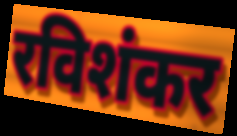
रविशंकर